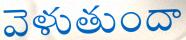
వెళుతుందా